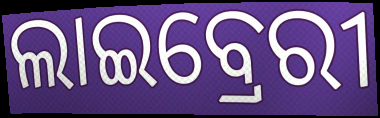
ଲାଇବ୍ରେରୀ